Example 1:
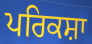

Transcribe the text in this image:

ਪਰਿਕਸ਼ਾ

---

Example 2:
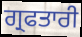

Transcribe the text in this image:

ਗ੍ਰਫਤਾਰੀ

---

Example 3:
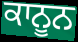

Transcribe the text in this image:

ਕਾਨੂਨ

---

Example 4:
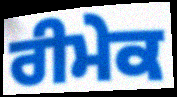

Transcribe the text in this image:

ਰੀਮੇਕ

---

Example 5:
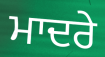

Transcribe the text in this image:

ਮਾਦਰੇ